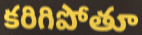
కరిగిపోతూ